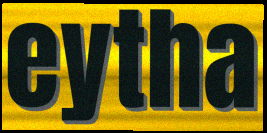
eytha